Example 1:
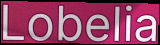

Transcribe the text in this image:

Lobelia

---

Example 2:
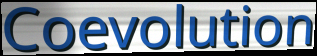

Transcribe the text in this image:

Coevolution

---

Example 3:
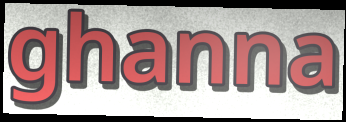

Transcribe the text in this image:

ghanna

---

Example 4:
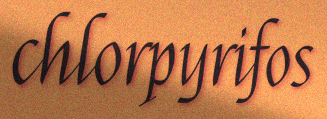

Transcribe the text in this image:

chlorpyrifos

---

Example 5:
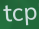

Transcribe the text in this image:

tcp